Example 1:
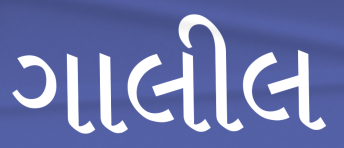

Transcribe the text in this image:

ગાલીલ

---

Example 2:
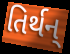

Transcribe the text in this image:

તિર્થન્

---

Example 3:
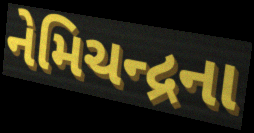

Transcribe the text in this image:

નેમિચન્દ્રના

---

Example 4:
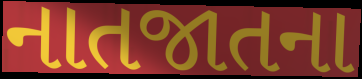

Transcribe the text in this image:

નાતજાતના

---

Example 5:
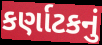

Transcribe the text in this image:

કર્ણાટકનું